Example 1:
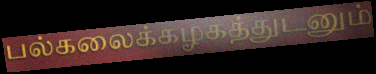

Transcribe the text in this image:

பல்கலைக்கழகத்துடனும்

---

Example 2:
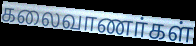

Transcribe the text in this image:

கலைவாணர்கள்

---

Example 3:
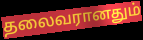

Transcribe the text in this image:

தலைவரானதும்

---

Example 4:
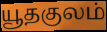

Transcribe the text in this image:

யூதகுலம்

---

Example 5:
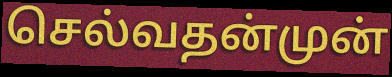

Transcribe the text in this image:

செல்வதன்முன்